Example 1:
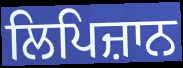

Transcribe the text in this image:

ਲਿਪਿਜ਼ਾਨ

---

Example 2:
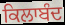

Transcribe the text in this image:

ਕਿਲਾਬੰਦ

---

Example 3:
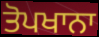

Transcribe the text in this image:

ਤੋਪਖਾਨਾ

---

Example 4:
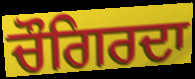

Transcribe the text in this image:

ਚੌਗਿਰਦਾ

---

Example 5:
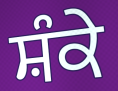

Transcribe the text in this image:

ਸ਼ੰਕੇ